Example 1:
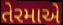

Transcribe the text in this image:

તેરમાએ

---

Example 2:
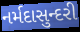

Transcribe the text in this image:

નર્મદાસુન્દરી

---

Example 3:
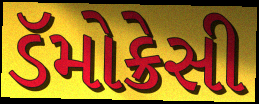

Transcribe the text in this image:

ડૅમોક્રેસી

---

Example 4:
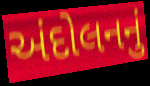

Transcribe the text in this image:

અંદોલનનું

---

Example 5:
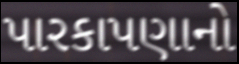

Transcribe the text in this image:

પારકાપણાનો